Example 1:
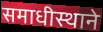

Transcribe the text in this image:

समाधीस्थाने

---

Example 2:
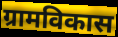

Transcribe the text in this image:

ग्रामविकास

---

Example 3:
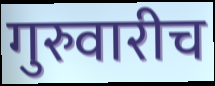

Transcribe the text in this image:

गुरुवारीच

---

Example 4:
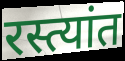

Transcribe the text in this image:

रस्त्यांत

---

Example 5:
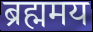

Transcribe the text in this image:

ब्रह्ममय